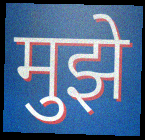
मुझे